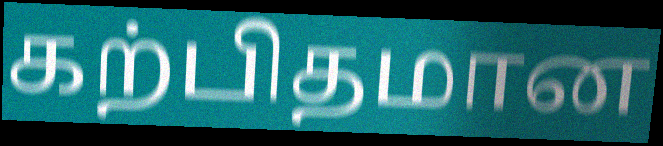
கற்பிதமான